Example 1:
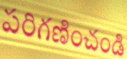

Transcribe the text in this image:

పరిగణించండి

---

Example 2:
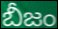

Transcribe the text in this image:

బీజం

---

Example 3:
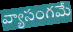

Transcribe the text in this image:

వ్యాసంగమే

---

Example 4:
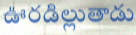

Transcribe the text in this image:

ఊరడిల్లుతాడు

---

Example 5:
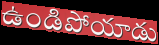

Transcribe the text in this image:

ఉండిపోయాడు